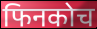
फिनकोच